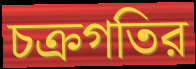
চক্রগতির